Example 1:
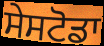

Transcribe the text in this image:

ਸੇਸਟੋਡਾ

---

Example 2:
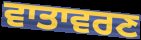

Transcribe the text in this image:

ਵਾਤਾਵਰਣ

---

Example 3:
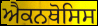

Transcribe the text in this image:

ਐਕਨਥੋਸਿਸ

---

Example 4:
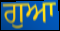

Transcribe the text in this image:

ਗੁਆ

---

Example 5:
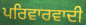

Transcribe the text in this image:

ਪਰਿਵਾਰਵਾਦੀ